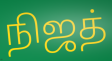
நிஜத்